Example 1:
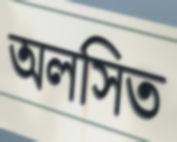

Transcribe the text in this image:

অলসিত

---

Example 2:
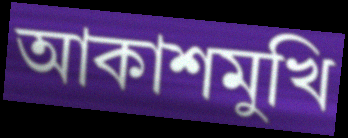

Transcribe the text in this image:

আকাশমুখি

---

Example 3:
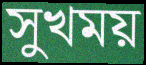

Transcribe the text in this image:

সুখময়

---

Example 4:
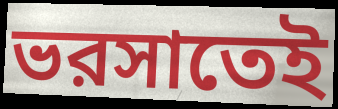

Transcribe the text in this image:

ভরসাতেই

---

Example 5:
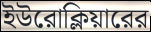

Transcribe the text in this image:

ইউরোক্লিয়ারের